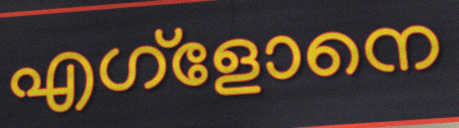
എഗ്ളോനെ